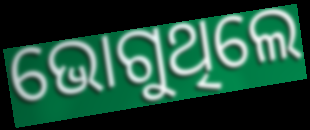
ଭୋଗୁଥିଲେ